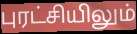
புரட்சியிலும்